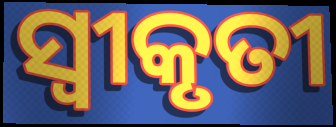
ସ୍ୱୀକୃତୀ